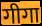
गीगा